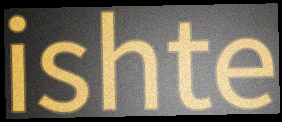
ishte